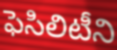
ఫెసిలిటీని